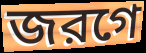
জরগে